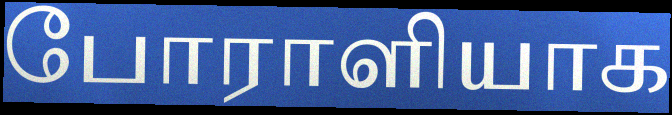
போராளியாக